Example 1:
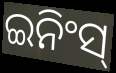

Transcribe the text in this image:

ଇନିଂସ୍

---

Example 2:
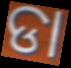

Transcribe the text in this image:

ଡା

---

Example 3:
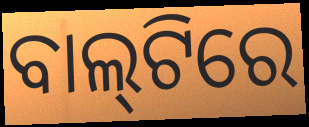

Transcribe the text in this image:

ବାଲ୍‌ଟିରେ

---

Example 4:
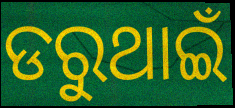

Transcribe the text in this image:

ଡରୁଥାଇଁ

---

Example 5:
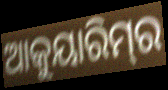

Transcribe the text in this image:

ଆକୁୟାରିମ୍‌ର